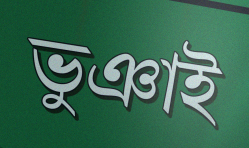
ভুঞাই